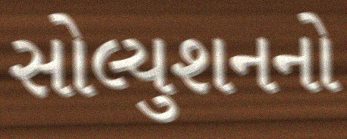
સોલ્યુશનનો